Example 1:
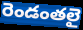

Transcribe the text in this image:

రెండంతలై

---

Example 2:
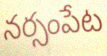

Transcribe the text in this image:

నర్సంపేట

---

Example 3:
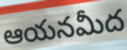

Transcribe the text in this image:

ఆయనమీద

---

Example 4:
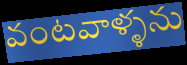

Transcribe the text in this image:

వంటవాళ్ళను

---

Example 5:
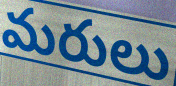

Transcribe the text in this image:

మరులు